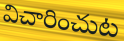
విచారించుట